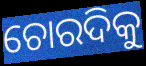
ଚୋରଦିକୁ